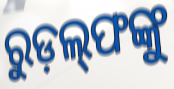
ରୁଡ଼ଲ୍‍ଫଙ୍କୁ